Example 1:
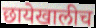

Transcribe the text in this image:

छायेखालीच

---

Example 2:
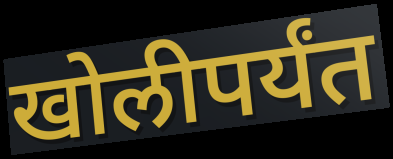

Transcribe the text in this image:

खोलीपर्यंत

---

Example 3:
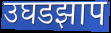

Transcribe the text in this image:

उघडझाप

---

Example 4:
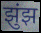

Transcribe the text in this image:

झुंझ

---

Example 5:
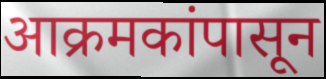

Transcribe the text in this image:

आक्रमकांपासून